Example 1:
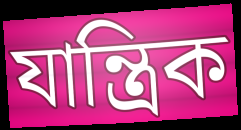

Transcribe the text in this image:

যান্ত্রিক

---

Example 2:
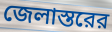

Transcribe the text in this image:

জেলাস্তরের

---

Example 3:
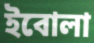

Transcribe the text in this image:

ইবোলা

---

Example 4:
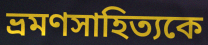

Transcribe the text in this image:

ভ্রমণসাহিত্যকে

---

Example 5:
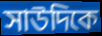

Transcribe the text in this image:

সাউদিকে